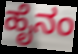
ಹೈನಂ